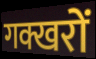
गक्खरों